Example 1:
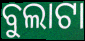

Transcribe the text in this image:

ବୁଲାଟା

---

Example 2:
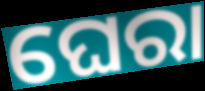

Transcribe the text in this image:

ଘେରା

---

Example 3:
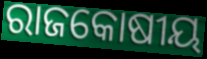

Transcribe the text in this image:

ରାଜକୋଷୀୟ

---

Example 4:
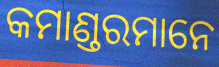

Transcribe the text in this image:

କମାଣ୍ଡରମାନେ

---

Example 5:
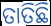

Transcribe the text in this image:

ତାତିଛି